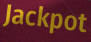
Jackpot